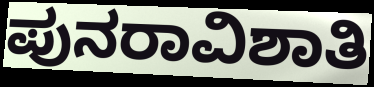
ಪುನರಾವಿಶಾತಿ